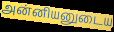
அன்னியனுடைய